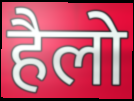
हैलो